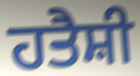
ਹਤੈਸ਼ੀ